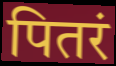
पितरं